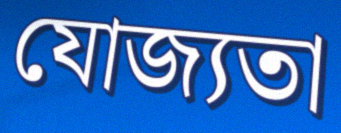
যোজ্যতা